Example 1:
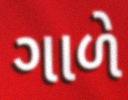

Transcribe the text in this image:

ગાળે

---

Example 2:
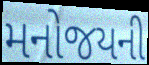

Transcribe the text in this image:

મનોજયની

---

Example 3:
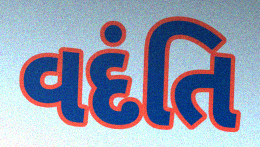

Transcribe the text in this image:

વદંતિ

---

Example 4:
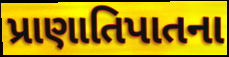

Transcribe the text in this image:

પ્રાણાતિપાતના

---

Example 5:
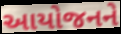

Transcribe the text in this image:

આયોજનને